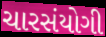
ચારસંયોગી